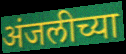
अंजलीच्या